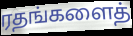
ரதங்களைத்